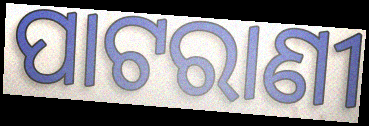
ପାଟରାଣୀ